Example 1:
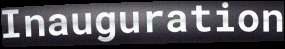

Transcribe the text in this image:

Inauguration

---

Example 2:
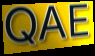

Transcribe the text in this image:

QAE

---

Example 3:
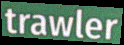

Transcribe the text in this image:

trawler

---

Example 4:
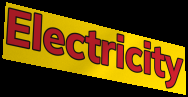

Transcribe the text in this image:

Electricity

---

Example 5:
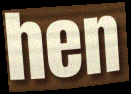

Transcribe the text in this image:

hen